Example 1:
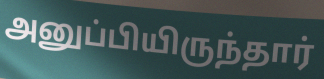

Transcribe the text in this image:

அனுப்பியிருந்தார்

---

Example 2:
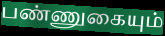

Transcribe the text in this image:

பண்ணுகையும்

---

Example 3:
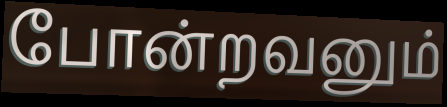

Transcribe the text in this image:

போன்றவனும்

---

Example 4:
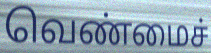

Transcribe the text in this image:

வெண்மைச்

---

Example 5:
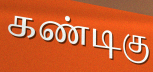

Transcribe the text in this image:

கண்டிகு